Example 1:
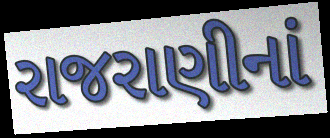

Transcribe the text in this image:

રાજરાણીનાં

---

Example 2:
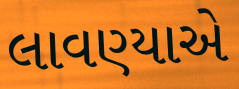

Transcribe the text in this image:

લાવણ્યાએ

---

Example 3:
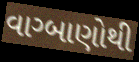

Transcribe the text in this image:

વાગ્બાણોથી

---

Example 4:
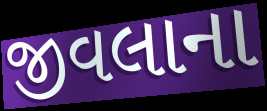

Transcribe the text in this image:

જીવલાના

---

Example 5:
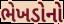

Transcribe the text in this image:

ભેખડોનો